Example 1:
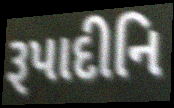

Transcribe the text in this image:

રૂપાદીનિ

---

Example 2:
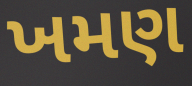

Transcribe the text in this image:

ખમણ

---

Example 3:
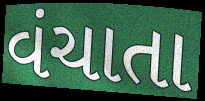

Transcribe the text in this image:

વંચાતા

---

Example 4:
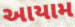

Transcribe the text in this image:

આયામ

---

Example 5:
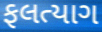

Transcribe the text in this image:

ફલત્યાગ